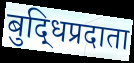
बुद्धिप्रदाता